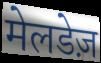
मेलडेज़